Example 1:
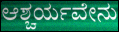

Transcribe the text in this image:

ಆಶ್ಚರ್ಯವೇನು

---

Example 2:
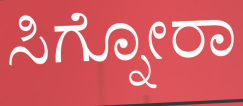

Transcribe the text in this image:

ಸಿಗ್ನೋರಾ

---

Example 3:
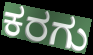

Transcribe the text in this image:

ಕರಗು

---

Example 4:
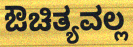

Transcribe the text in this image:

ಔಚಿತ್ಯವಲ್ಲ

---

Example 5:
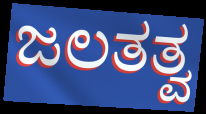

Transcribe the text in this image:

ಜಲತತ್ವ